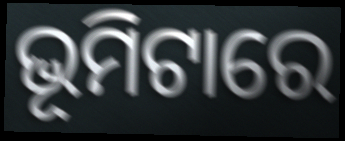
ଭୂମିଟାରେ